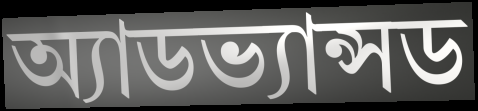
অ্যাডভ্যান্সড